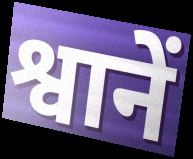
श्वानें